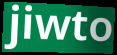
jiwto